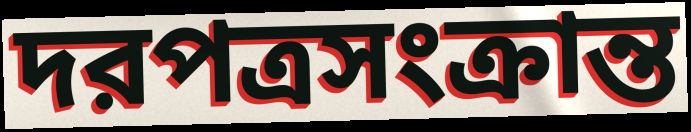
দরপত্রসংক্রান্ত